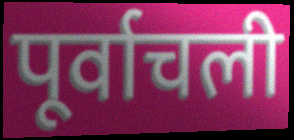
पूर्वाचली